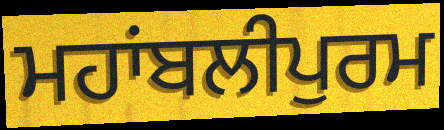
ਮਹਾਂਬਲੀਪੁਰਮ